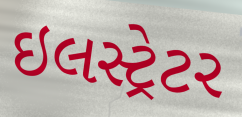
ઇલસ્ટ્રેટર